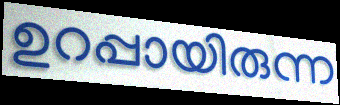
ഉറപ്പായിരുന്ന